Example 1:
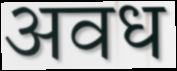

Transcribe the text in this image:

अवध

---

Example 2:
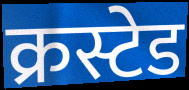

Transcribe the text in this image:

क्रस्टेड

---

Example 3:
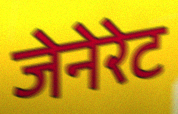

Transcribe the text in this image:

जेनेरेट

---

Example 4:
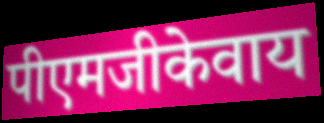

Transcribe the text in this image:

पीएमजीकेवाय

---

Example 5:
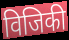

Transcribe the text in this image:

विजिकी